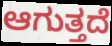
ಆಗುತ್ತದೆ